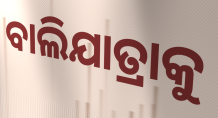
ବାଲିଯାତ୍ରାକୁ